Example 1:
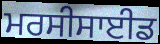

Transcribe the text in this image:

ਮਰਸੀਸਾਈਡ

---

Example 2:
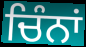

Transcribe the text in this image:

ਚਿੰਨਾਂ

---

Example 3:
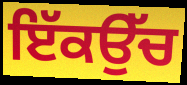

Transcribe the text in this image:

ਇੱਕਉੱਚ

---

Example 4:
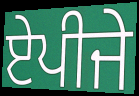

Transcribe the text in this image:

ਏਪੀਜੇ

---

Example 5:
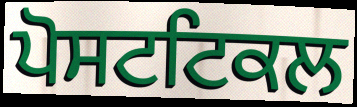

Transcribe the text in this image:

ਪੋਸਟਟਿਕਲ